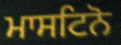
ਮਾਸਟਿਨੋ